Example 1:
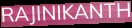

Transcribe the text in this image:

RAJINIKANTH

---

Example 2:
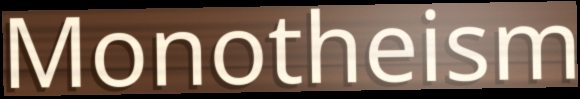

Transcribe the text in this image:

Monotheism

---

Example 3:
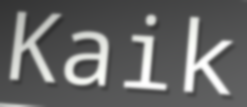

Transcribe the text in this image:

Kaik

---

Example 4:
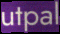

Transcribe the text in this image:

utpal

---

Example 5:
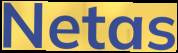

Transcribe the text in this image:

Netas